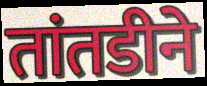
तांतडीने